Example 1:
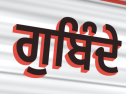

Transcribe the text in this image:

ਗੁਬਿੰਦੇ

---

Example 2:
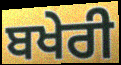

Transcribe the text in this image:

ਬਖੇਰੀ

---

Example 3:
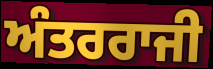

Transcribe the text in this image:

ਅੰਤਰਰਾਜੀ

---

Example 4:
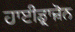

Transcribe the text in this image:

ਹਾਈਡ੍ਰਾਜ਼ੋਨ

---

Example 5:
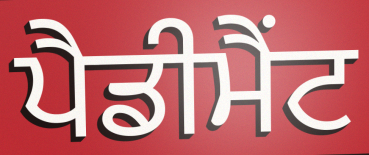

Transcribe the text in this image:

ਪੈਡੀਮੈਂਟ